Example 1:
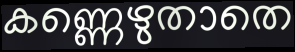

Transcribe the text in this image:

കണ്ണെഴുതാതെ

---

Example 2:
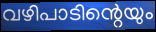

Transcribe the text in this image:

വഴിപാടിന്റെയും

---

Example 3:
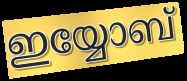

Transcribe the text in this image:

ഇയ്യോബ്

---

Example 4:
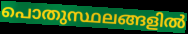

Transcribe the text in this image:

പൊതുസ്ഥലങ്ങളിൽ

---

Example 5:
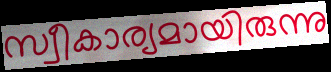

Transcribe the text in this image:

സ്വീകാര്യമായിരുന്നു